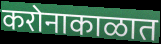
करोनाकाळात